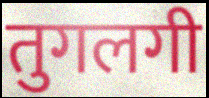
तुगलगी